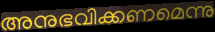
അനുഭവിക്കണമെന്നു